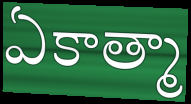
ఏకాత్మా